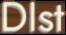
DIst